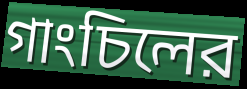
গাংচিলের